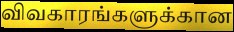
விவகாரங்களுக்கான